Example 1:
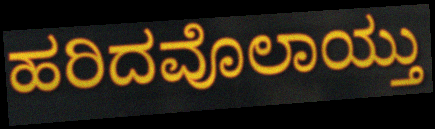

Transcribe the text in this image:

ಹರಿದವೊಲಾಯ್ತು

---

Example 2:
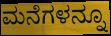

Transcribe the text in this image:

ಮನೆಗಳನ್ನೂ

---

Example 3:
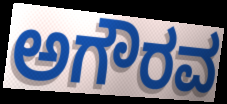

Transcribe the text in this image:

ಅಗೌರವ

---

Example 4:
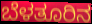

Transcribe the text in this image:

ಬೆಳತೂರಿನ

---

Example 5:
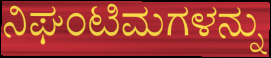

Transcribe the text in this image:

ನಿಘಂಟಿಮಗಳನ್ನು